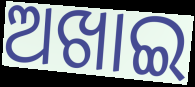
ଅଖାଇ